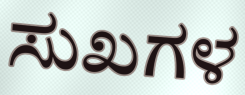
ಸುಖಗಳ